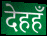
देहहँ